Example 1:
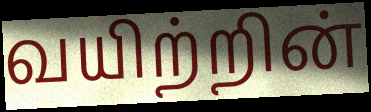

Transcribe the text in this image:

வயிற்றின்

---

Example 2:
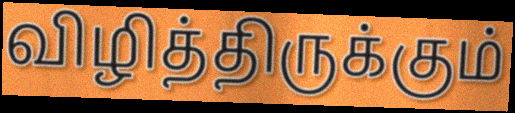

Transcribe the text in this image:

விழித்திருக்கும்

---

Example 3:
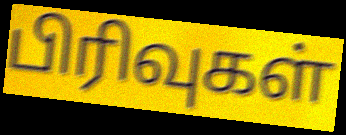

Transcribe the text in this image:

பிரிவுகள்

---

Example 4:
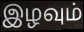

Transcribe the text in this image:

இழவும்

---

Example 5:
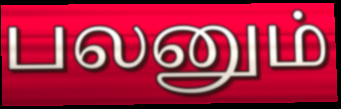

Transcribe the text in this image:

பலனும்